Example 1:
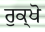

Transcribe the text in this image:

ਰੁਕ੍ਖੋ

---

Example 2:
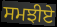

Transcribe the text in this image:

ਸਮਝੀਏ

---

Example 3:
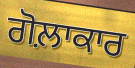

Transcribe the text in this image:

ਗੋਲ਼ਾਕਾਰ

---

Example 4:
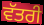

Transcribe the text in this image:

ਵੱਤਰੀ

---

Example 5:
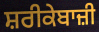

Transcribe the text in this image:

ਸ਼ਰੀਕੇਬਾਜ਼ੀ